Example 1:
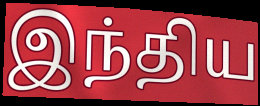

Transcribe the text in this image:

இந்திய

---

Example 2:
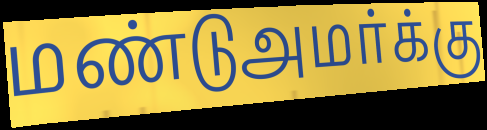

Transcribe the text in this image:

மண்டுஅமர்க்கு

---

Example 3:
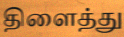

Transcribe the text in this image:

திளைத்து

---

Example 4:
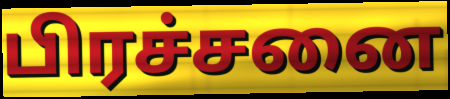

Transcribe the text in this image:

பிரச்சனை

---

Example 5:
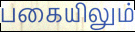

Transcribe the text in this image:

பகையிலும்